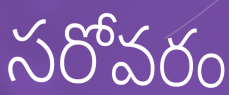
సరోవరం